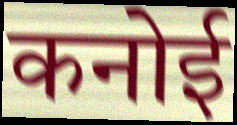
कनोई